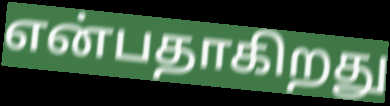
என்பதாகிறது